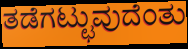
ತಡೆಗಟ್ಟುವುದೆಂತು